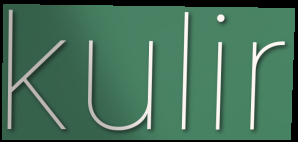
kulir